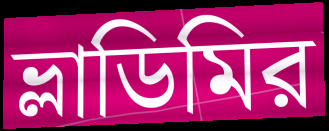
ভ্লাডিমির